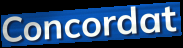
Concordat